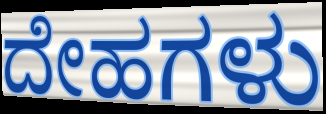
ದೇಹಗಳು